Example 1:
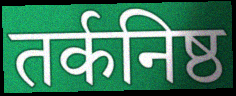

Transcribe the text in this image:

तर्कनिष्ठ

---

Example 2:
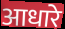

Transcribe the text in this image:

आधारे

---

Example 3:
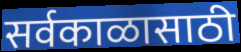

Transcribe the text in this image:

सर्वकाळासाठी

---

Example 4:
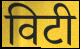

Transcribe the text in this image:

विटी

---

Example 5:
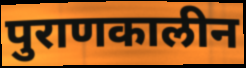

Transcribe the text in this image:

पुराणकालीन